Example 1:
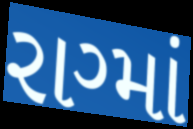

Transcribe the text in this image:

રાગ્માં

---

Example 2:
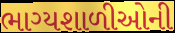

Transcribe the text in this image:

ભાગ્યશાળીઓની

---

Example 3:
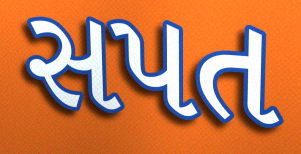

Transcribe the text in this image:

સપત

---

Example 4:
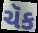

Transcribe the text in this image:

ચૅક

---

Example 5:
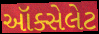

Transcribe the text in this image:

ઑક્સેલેટ